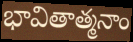
భావితాత్మనాం